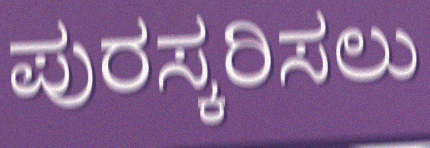
ಪುರಸ್ಕರಿಸಲು